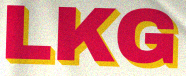
LKG